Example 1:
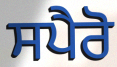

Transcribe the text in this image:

ਸਪੈਰੋ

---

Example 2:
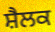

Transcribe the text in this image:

ਸ਼ੈਲਕ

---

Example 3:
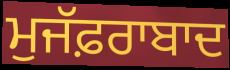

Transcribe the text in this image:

ਮੁਜੱਫ਼ਰਾਬਾਦ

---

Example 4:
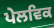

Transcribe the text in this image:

ਪੇਲਵਿਕ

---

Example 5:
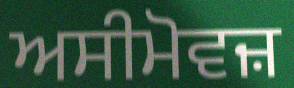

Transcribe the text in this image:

ਅਸੀਮੋਵਜ਼